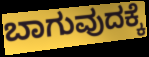
ಬಾಗುವುದಕ್ಕೆ